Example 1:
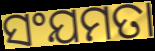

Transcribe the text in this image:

ସଂଯମତା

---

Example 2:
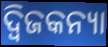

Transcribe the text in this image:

ଦ୍ୱିଜକନ୍ୟା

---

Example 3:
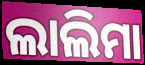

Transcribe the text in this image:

ଲାଲିମା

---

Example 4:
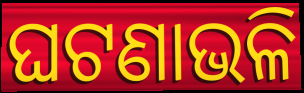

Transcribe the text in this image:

ଘଟଣାଭଳି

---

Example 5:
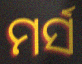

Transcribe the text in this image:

ମର୍ସ